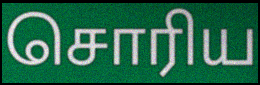
சொரிய